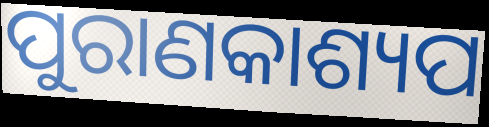
ପୁରାଣକାଶ୍ୟପ